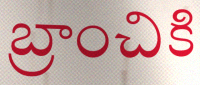
బ్రాంచికి